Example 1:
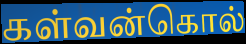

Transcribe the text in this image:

கள்வன்கொல்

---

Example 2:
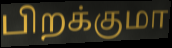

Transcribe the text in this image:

பிறக்குமா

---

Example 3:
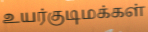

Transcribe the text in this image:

உயர்குடிமக்கள்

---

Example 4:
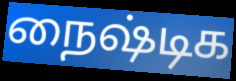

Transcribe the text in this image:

நைஷ்டிக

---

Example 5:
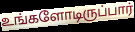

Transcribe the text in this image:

உங்களோடிருப்பார்